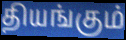
தியங்கும்